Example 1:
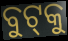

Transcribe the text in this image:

ବୁଟ୍‌କୁ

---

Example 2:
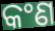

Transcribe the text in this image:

କଂଣ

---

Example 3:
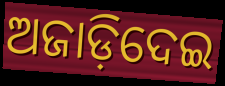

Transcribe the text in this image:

ଅଜାଡ଼ିଦେଇ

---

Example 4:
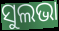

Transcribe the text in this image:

ସୁଲଭା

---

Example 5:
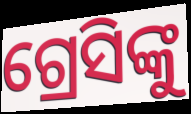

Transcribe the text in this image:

ଗ୍ରେସିଙ୍କୁ